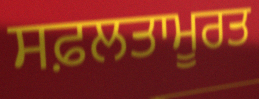
ਸਫ਼ਲਤਾਮੂਰਤ